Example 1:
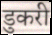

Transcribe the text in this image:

डुकरी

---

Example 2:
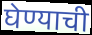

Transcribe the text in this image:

घेण्याची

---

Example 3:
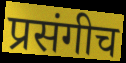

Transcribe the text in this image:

प्रसंगीच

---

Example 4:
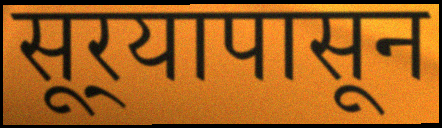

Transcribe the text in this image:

सूर्यापासून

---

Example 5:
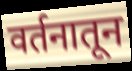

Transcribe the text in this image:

वर्तनातून